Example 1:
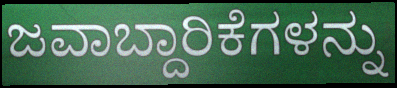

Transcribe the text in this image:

ಜವಾಬ್ದಾರಿಕೆಗಳನ್ನು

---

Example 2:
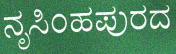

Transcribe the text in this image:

ನೃಸಿಂಹಪುರದ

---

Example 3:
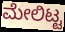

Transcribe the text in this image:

ಮೇಲಿಟ್ಟ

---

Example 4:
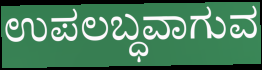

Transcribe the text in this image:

ಉಪಲಬ್ಧವಾಗುವ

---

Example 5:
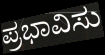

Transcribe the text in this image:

ಪ್ರಭಾವಿಸು